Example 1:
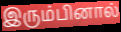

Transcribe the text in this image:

இரும்பினால்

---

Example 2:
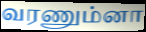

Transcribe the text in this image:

வரணும்னா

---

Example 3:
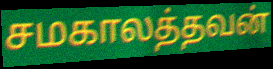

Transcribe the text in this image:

சமகாலத்தவன்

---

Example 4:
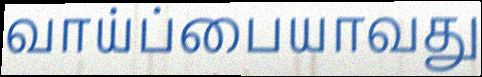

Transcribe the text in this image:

வாய்ப்பையாவது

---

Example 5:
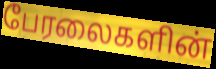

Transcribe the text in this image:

பேரலைகளின்